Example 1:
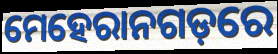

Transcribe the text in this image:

ମେହେରାନଗଡ଼ରେ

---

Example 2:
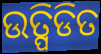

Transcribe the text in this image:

ଉତ୍ପିଡିତ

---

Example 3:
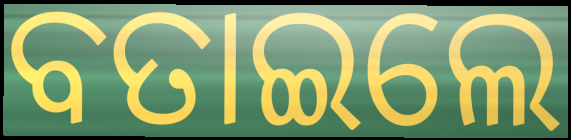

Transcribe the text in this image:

ବତାଇଲେ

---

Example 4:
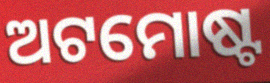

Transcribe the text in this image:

ଅଟମୋଷ୍ଟ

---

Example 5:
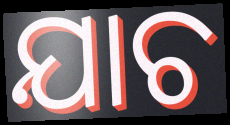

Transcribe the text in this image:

ଯାଚ